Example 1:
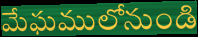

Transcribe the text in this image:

మేఘములోనుండి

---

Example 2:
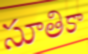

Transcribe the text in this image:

సూతికా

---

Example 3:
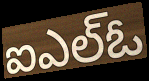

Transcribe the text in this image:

ఐఎల్ఓ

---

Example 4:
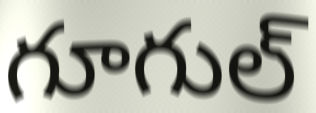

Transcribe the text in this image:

గూగుల్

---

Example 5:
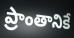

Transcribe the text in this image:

ప్రాంతానికే